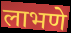
लाभणे